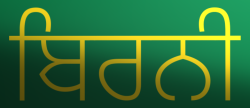
ਬਿਰਨੀ